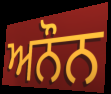
ਅਨੌਨ